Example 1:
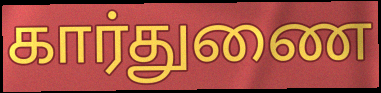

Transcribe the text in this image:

கார்துணை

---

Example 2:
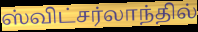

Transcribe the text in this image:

ஸ்விட்சர்லாந்தில்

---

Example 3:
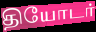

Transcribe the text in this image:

தியோடர்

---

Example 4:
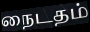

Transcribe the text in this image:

நைடதம்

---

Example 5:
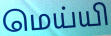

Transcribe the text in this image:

மெய்யி